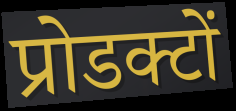
प्रोडक्टों